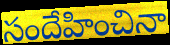
సందేహించినా